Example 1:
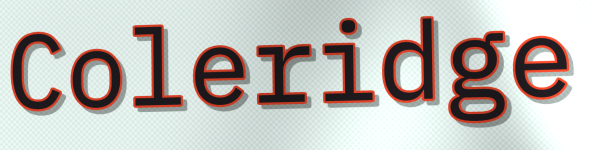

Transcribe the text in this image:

Coleridge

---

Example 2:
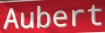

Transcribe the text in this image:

Aubert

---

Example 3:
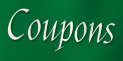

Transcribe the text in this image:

Coupons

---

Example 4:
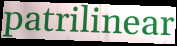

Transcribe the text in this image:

patrilinear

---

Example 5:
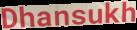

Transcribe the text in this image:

Dhansukh